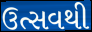
ઉત્સવથી